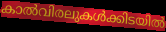
കാൽവിരലുകൾക്കിടയിൽ